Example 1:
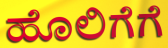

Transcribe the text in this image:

ಹೊಲಿಗೆಗೆ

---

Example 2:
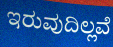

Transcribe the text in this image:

ಇರುವುದಿಲ್ಲವೆ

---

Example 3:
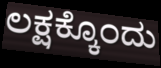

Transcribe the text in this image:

ಲಕ್ಷಕ್ಕೊಂದು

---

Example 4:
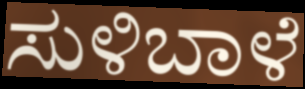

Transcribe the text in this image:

ಸುಳಿಬಾಳೆ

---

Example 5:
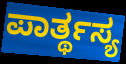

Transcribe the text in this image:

ಪಾರ್ತ್ಥಸ್ಯ